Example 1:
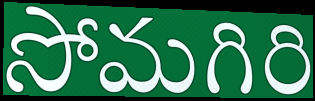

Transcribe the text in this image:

సోమగిరి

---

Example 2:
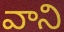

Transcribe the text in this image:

వాని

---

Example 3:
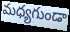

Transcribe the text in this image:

మధ్యగుండా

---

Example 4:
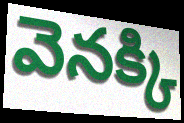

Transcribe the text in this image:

వెనక్కి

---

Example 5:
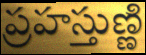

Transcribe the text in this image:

ప్రహస్తుణ్ణి